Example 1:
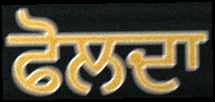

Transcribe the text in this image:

ਫੋਲਦਾ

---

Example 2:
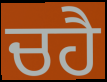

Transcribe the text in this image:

ਚਹੈ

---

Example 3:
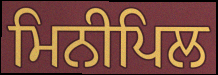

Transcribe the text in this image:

ਮਿਨੀਪਿਲ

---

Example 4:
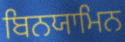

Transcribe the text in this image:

ਬਿਨਯਾਮਿਨ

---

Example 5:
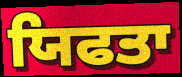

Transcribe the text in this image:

ਯਿਫਤਾ